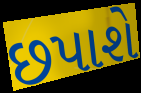
છપાશે